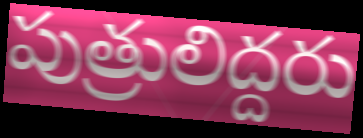
పుత్రులిద్దరు